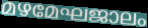
മഴമേഘജാലം